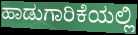
ಹಾಡುಗಾರಿಕೆಯಲ್ಲಿ